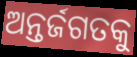
ଅନ୍ତର୍ଜଗତକୁ